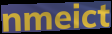
nmeict